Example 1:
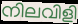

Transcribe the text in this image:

നിലവിളി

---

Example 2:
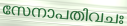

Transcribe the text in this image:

സേനാപതിവചഃ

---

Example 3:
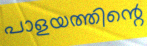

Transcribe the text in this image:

പാളയത്തിന്റെ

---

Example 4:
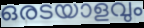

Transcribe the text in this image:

ഒരടയാളവും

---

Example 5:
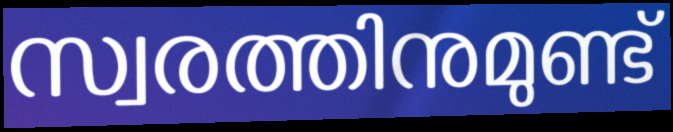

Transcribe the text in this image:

സ്വരത്തിനുമുണ്ട്